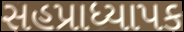
સહપ્રાધ્યાપક